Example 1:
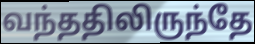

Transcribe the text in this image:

வந்ததிலிருந்தே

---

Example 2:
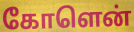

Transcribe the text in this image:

கோளென்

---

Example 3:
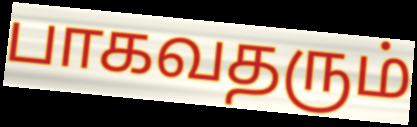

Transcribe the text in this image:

பாகவதரும்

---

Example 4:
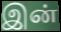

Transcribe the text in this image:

இன்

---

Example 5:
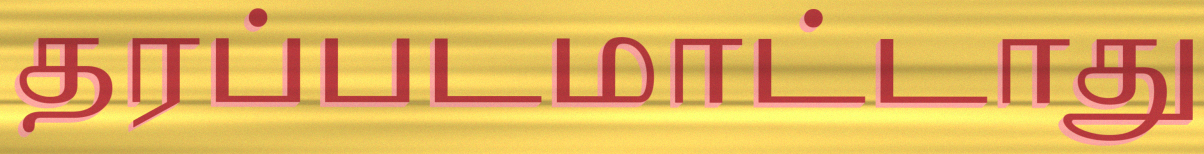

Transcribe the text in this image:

தரப்படமாட்டாது